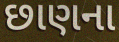
છાણના